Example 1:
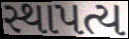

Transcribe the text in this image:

સ્થાપત્ય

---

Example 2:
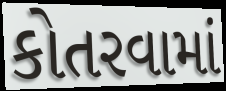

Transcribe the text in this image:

કોતરવામાં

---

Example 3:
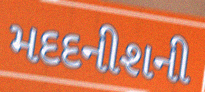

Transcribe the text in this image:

મદદનીશની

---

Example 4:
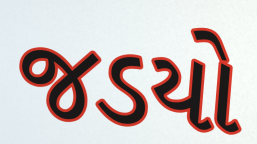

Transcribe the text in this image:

જડયો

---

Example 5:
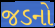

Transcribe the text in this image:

જડનો